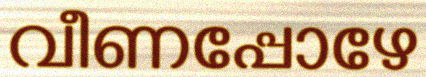
വീണപ്പോഴേ